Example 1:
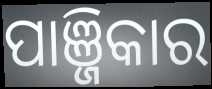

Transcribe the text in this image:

ପାଞ୍ଜିକାର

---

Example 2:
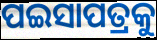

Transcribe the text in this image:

ପଇସାପତ୍ରକୁ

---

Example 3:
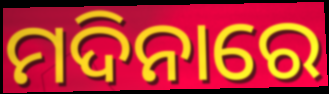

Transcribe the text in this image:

ମଦିନାରେ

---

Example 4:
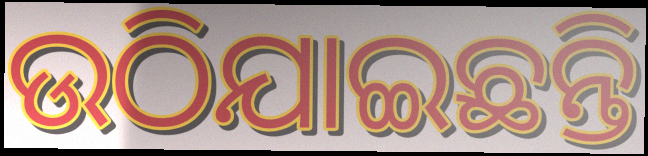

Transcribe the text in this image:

ଉଠିଯାଇଛନ୍ତି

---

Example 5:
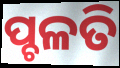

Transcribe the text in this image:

ପ୍ଚଳତି